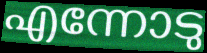
എന്നോടു